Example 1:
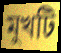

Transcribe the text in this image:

মুখটি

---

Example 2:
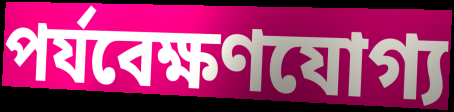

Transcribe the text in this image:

পর্যবেক্ষণযোগ্য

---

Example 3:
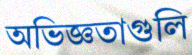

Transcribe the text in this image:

অভিজ্ঞতাগুলি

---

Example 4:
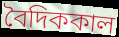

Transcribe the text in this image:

বৈদিককাল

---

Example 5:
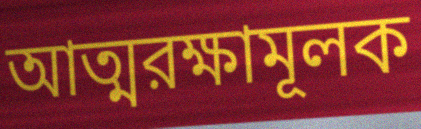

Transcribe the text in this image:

আত্মরক্ষামূলক